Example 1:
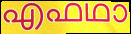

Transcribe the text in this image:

എഫഥാ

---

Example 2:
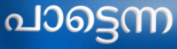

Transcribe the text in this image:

പാട്ടെന്ന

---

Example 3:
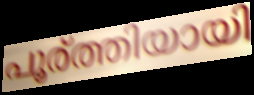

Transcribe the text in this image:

പൂര്ത്തിയായി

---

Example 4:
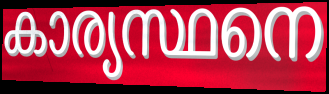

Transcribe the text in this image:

കാര്യസ്ഥനെ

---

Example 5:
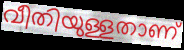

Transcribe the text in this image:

വീതിയുള്ളതാണ്